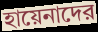
হায়েনাদের